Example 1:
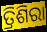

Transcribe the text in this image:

ତ୍ରିଶିରା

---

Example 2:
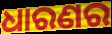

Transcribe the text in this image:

ଧାରଣର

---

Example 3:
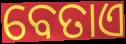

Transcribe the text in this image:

ବେତାଏ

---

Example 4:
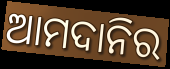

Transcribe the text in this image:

ଆମଦାନିର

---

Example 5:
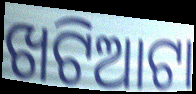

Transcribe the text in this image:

ଖଟିଆଟା